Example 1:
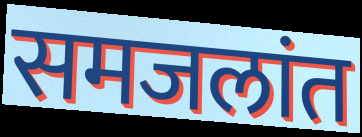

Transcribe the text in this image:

समजलांत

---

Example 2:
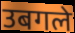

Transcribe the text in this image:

उबगले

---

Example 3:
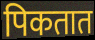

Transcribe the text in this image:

पिकतात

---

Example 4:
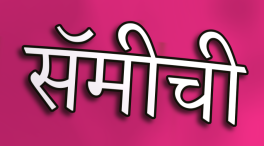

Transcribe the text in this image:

सॅमीची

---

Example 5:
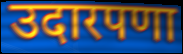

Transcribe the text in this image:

उदारपणा